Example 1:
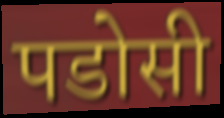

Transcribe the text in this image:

पडोसी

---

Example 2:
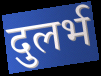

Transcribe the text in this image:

दुलर्भ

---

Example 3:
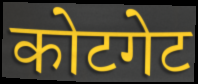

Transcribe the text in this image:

कोटगेट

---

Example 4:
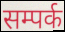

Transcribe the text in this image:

सम्पर्क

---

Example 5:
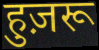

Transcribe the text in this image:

हुज़रू